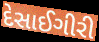
દેસાઈગીરી